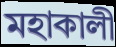
মহাকালী